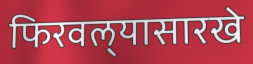
फिरवल्यासारखे